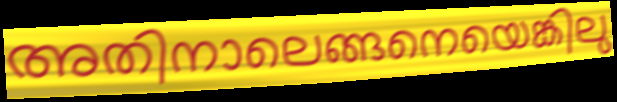
അതിനാലെങ്ങനെയെങ്കിലു